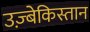
उज़्बेकिस्तान